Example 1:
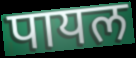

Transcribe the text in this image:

पायल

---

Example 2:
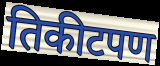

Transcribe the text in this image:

तिकीटपण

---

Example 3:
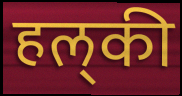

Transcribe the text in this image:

हल्की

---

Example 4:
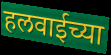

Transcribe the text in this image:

हलवाईच्या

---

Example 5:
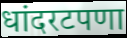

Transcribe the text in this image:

धांदरटपणा